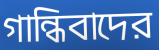
গান্ধিবাদের